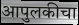
आपुलकीचा